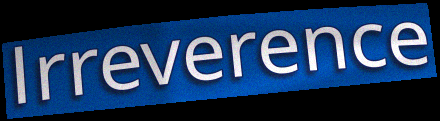
Irreverence